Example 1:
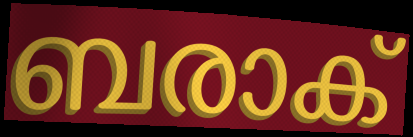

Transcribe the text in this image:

ബരാക്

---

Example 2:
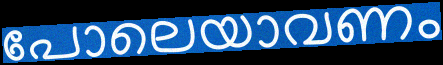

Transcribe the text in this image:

പോലെയാവണം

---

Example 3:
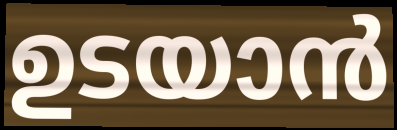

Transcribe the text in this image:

ഉടയാൻ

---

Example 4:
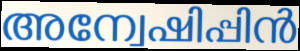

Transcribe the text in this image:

അന്വേഷിപ്പിൻ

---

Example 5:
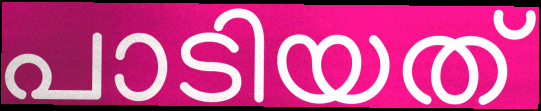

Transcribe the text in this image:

പാടിയത്